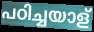
പഠിച്ചയാള്